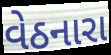
વેઠનારા